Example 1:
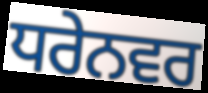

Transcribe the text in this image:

ਧਰੇਨਵਰ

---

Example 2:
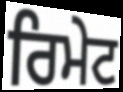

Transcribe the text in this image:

ਰਿਮੇਟ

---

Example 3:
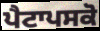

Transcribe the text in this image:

ਪੈਟਾਪਸਕੋ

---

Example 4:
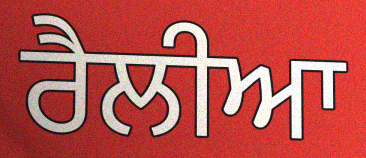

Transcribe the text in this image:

ਰੈਲੀਆ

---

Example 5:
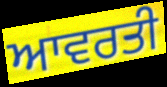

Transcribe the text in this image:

ਆਵਰਤੀ